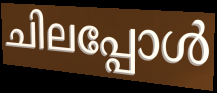
ചിലപ്പോൾ